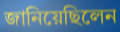
জানিয়েছিলেন